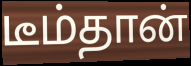
டீம்தான்